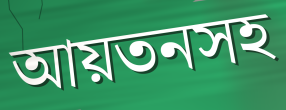
আয়তনসহ